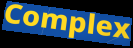
Complex